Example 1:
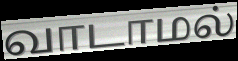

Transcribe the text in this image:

வாடாமல்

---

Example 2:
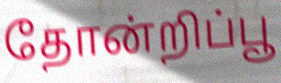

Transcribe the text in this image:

தோன்றிப்பூ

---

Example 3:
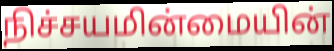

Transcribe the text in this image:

நிச்சயமின்மையின்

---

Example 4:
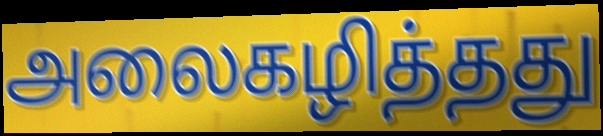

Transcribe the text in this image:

அலைகழித்தது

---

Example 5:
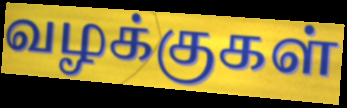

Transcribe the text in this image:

வழக்குகள்